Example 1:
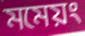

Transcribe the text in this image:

মমেয়ং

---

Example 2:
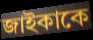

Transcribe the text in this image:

জাইকাকে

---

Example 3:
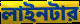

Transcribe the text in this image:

লাইনটার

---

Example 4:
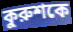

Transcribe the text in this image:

কুরুশকে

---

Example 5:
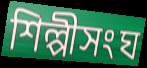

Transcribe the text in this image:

শিল্পীসংঘ